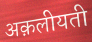
अक़लीयती